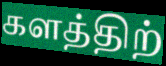
களத்திற்